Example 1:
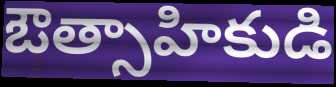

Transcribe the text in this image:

ఔత్సాహికుడి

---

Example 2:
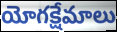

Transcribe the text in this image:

యోగక్షేమాలు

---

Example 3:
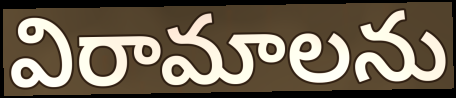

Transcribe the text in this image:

విరామాలను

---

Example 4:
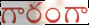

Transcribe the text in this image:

గారంగా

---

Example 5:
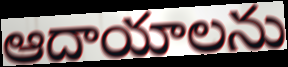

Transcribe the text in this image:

ఆదాయాలను